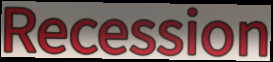
Recession